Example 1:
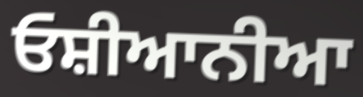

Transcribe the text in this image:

ਓਸ਼ੀਆਨੀਆ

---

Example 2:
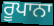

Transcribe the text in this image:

ਰੂਪਾਨਾ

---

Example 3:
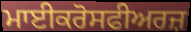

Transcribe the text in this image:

ਮਾਈਕਰੋਸਫੀਅਰਜ਼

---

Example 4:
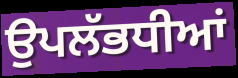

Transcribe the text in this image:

ਉਪਲੱਭਧੀਆਂ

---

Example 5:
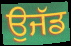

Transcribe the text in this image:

ਉਜੱਡ